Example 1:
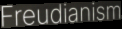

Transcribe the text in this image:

Freudianism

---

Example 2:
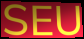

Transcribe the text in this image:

SEU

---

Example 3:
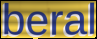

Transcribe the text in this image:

beral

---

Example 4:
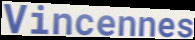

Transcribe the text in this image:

Vincennes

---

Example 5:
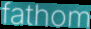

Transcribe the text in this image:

fathom